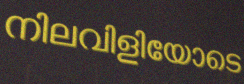
നിലവിളിയോടെ